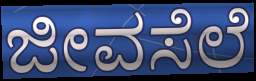
ಜೀವಸೆಲೆ